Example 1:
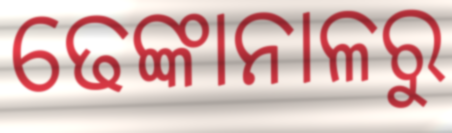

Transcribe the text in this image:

ଢେଙ୍କାନାଳରୁ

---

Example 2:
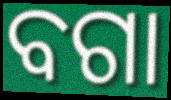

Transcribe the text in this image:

ବଗା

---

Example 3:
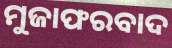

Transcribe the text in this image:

ମୁଜାଫରବାଦ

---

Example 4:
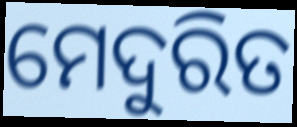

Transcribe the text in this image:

ମେଦୁରିତ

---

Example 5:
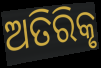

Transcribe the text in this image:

ଅତିରିକୃ